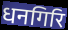
धनगिरि